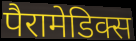
पैरामेडिक्स